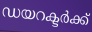
ഡയറക്ടർക്ക്